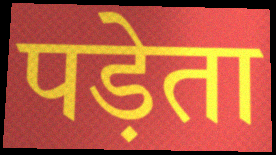
पड़ेता